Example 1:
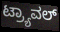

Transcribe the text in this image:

ಟ್ರ್ಯಾವಲ್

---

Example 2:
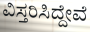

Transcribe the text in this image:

ವಿಸ್ತರಿಸಿದ್ದೇವೆ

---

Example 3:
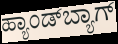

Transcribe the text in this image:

ಹ್ಯಾಂಡ್‌ಬ್ಯಾಗ್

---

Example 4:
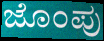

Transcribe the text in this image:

ಜೊಂಪು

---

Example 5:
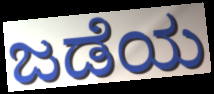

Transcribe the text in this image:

ಜಡೆಯ